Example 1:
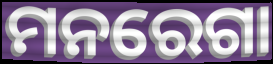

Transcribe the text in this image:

ମନରେଗା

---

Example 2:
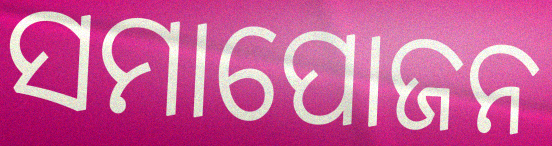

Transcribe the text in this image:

ସମାପୋଜନ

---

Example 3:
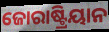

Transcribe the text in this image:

ଜୋରାଷ୍ଟ୍ରିୟାନ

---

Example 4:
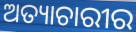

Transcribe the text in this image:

ଅତ୍ୟାଚାରୀର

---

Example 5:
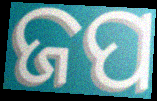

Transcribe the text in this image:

ଜପ